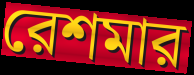
রেশমার